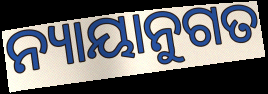
ନ୍ୟାୟାନୁଗତ